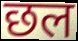
छल